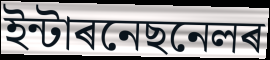
ইন্টাৰনেছনেলৰ